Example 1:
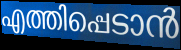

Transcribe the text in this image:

എത്തിപ്പെടാൻ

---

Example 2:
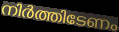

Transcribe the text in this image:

നിർത്തിടേണം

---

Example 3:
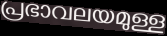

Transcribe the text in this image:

പ്രഭാവലയമുള്ള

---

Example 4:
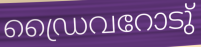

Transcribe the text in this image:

ഡ്രൈവറോടു്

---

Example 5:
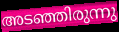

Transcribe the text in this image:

അടഞ്ഞിരുന്നു